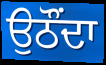
ਉਠੌਂਦਾ